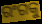
ରଂଗକୁ